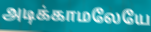
அடிக்காமலேயே